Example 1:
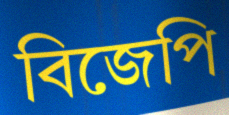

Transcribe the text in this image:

বিজেপি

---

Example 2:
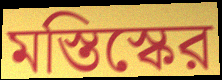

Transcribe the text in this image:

মস্তিস্কের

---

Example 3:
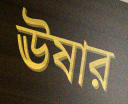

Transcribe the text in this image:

ঊষার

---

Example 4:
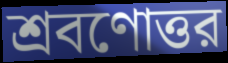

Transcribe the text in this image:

শ্রবণোত্তর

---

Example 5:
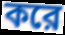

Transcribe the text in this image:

করে